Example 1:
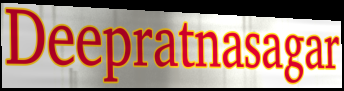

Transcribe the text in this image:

Deepratnasagar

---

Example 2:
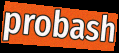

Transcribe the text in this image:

probash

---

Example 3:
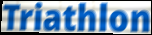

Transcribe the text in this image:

Triathlon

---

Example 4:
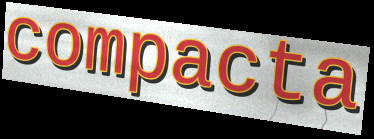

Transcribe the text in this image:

compacta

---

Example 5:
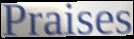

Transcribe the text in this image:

Praises